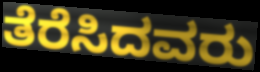
ತೆರೆಸಿದವರು